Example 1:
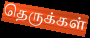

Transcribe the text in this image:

தெருக்கள்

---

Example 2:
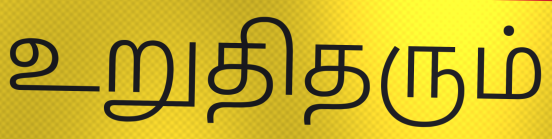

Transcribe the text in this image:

உறுதிதரும்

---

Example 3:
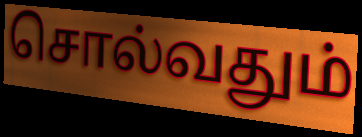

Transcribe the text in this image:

சொல்வதும்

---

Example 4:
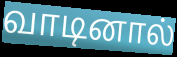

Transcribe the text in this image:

வாடினால்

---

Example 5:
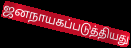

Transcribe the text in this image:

ஜனநாயகப்படுத்தியது